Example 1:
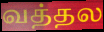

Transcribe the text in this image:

வத்தல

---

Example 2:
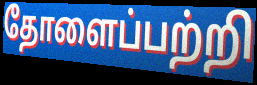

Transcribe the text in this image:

தோளைப்பற்றி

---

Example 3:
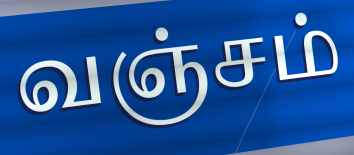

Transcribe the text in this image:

வஞ்சம்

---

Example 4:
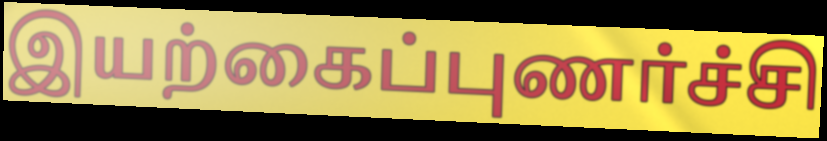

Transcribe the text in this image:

இயற்கைப்புணர்ச்சி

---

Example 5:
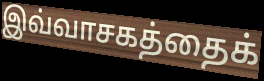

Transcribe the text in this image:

இவ்வாசகத்தைக்